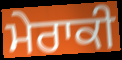
ਮੇਰਾਕੀ